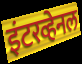
इंटरव्हेनल